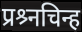
प्रश्र्नचिन्ह